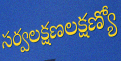
సర్వలక్షణలక్షణ్యో